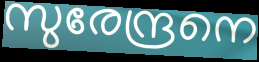
സുരേന്ദ്രനെ